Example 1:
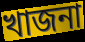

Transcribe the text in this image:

খাজনা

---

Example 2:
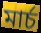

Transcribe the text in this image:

মার্চ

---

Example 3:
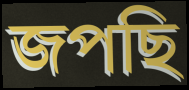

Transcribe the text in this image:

জপছি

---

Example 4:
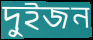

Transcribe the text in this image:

দুইজন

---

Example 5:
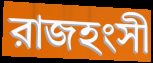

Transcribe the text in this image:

রাজহংসী